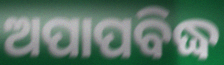
ଅପାପବିଦ୍ଧ